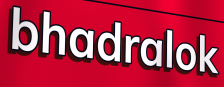
bhadralok